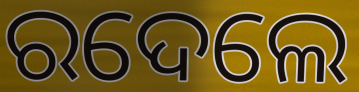
ରଦେଲେ